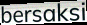
bersaksi